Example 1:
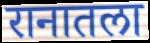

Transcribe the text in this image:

रानातला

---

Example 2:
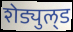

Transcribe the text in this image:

शेड्युल्ड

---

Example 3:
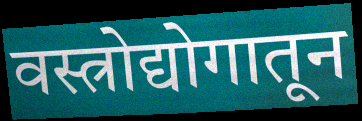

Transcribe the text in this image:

वस्त्रोद्योगातून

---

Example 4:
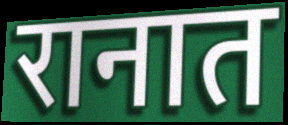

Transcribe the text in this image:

रानात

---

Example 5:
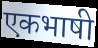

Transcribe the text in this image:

एकभाषी